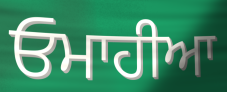
ਓਮਾਹੀਆ